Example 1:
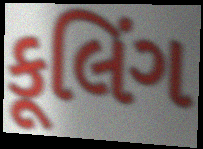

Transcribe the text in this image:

કૂલિંગ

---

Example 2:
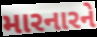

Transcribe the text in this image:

મારનારને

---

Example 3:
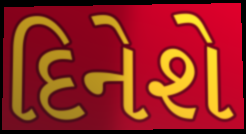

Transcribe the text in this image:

દિનેશે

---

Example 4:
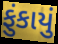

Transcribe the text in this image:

ફુંકાયું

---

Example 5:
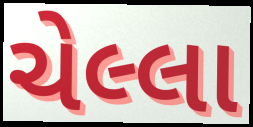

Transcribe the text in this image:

ચેલ્લા